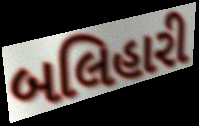
બલિહારી